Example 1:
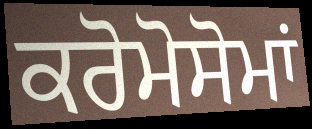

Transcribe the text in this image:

ਕਰੋਮੋਸੋਮਾਂ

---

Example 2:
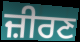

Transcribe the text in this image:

ਜ਼ੀਰਣ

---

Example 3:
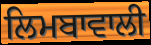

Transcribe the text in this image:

ਲਿਮਬਾਵਾਲੀ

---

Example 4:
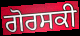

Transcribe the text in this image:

ਗੋਰਸਕੀ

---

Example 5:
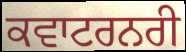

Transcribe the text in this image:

ਕਵਾਟਰਨਰੀ